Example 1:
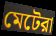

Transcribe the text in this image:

মেটেরা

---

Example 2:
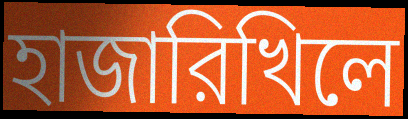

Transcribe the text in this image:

হাজারিখিলে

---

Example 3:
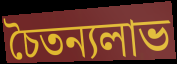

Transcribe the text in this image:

চৈতন্যলাভ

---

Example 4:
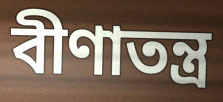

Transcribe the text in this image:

বীণাতন্ত্র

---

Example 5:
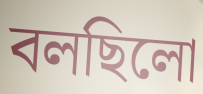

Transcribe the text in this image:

বলছিলো